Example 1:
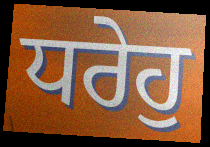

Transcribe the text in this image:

ਧਰੇਹੁ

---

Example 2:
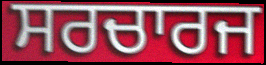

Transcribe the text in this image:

ਸਰਚਾਰਜ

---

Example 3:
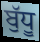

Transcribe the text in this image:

ਬੁੱਧੂ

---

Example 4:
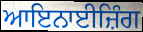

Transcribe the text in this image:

ਆਇਨਾਈਜ਼ਿੰਗ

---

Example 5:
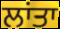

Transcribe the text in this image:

ਲਾਂਤਾ